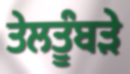
ਤੇਲਤੂੰਬੜੇ